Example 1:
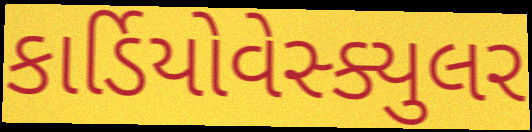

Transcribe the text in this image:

કાર્ડિયોવેસ્ક્યુલર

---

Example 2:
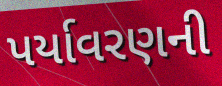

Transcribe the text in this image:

પર્યાવરણની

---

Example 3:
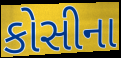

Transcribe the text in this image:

કોસીના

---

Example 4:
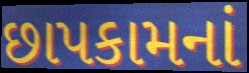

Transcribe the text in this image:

છાપકામનાં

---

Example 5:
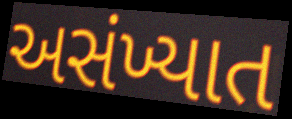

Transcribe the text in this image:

અસંખ્યાત